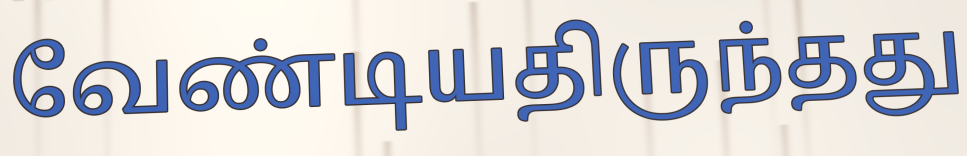
வேண்டியதிருந்தது